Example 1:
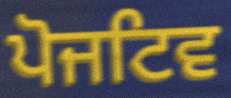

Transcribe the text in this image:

ਪੋਜਟਿਵ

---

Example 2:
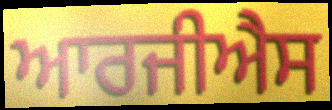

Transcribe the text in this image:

ਆਰਜੀਐਸ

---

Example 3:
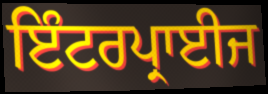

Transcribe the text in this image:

ਇੰਟਰਪ੍ਰਾਈਜ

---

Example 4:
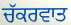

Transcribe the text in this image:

ਚੱਕਰਵਾਤ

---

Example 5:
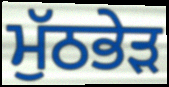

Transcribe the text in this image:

ਮੁੱਠਭੇੜ